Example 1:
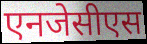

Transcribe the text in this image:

एनजेसीएस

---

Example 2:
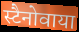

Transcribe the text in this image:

स्टैनोवाया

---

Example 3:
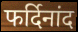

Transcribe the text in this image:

फर्दिनांद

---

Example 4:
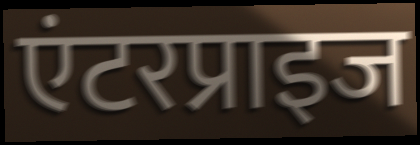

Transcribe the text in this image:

एंटरप्राइज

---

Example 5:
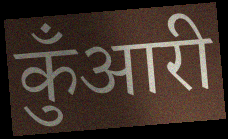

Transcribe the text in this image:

कुँआरी